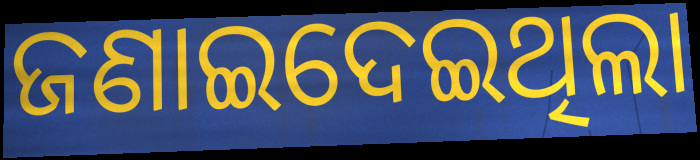
ଜଣାଇଦେଇଥିଲା